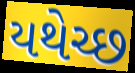
યથેચ્છ